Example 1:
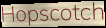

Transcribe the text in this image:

Hopscotch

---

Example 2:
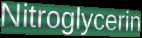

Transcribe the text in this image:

Nitroglycerin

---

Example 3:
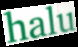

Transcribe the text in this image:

halu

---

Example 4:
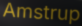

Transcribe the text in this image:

Amstrup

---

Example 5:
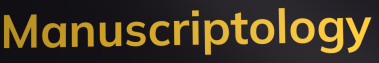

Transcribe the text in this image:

Manuscriptology